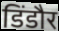
डिंडौर